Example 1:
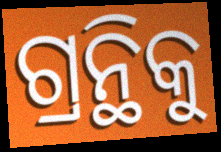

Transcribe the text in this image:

ଗ୍ରନ୍ଥିକୁ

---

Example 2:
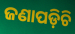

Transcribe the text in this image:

ଜଣାପଡ଼ିଚି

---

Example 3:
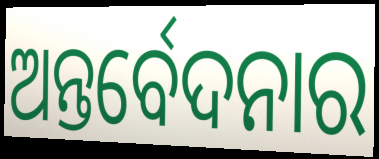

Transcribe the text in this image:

ଅନ୍ତର୍ବେଦନାର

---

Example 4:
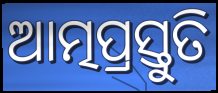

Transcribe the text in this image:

ଆତ୍ମପ୍ରସ୍ତୁତି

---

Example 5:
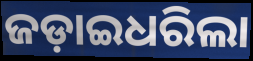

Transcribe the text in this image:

ଜଡ଼ାଇଧରିଲା